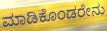
ಮಾಡಿಕೊಂಡರೇನು